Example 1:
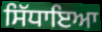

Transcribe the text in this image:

ਸਿੱਧਾਇਆ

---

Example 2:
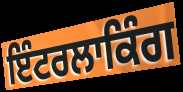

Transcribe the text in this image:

ਇੰਟਰਲਾਕਿੰਗ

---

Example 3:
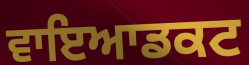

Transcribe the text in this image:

ਵਾਇਆਡਕਟ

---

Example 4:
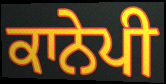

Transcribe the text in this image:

ਕਾਨੇਪੀ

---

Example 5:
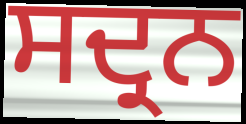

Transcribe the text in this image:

ਸਦ੍ਰਨ